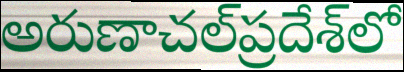
అరుణాచల్‌ప్రదేశ్‌లో